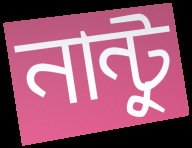
নান্টু